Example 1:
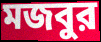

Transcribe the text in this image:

মজবুর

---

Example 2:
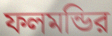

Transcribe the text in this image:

ফলমন্ডির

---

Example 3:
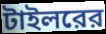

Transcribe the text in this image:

টাইলরের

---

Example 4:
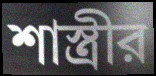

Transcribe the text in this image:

শাস্ত্রীর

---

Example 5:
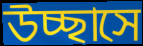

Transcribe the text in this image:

উচ্ছাসে